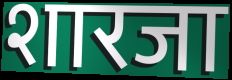
शारजा